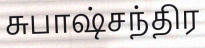
சுபாஷ்சந்திர